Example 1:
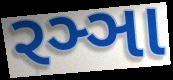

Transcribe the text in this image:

રઞ્ઞા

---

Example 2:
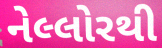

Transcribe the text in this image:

નેલ્લોરથી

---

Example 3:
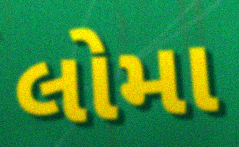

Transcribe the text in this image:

લોમા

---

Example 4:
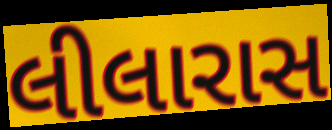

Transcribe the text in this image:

લીલારાસ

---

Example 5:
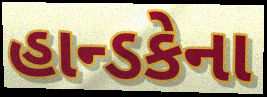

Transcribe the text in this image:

હાન્ડકેના